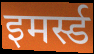
इमर्स्ड